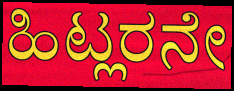
ಹಿಟ್ಲರನೇ